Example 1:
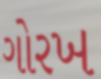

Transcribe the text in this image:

ગોરખ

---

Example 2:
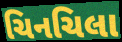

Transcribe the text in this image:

ચિનચિલા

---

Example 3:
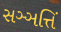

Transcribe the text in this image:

સઞ્ઞત્તિં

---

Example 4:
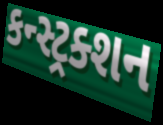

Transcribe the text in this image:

કન્સ્ટ્રક્શન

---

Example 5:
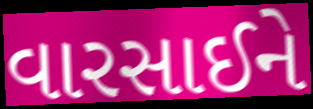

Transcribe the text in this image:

વારસાઈને